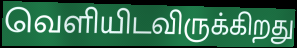
வெளியிடவிருக்கிறது